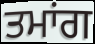
ਤਮਾਂਗ